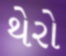
થેરો